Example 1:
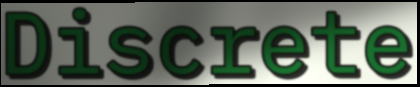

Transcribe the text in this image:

Discrete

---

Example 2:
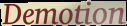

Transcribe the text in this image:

Demotion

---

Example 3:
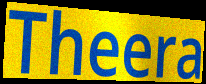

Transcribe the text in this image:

Theera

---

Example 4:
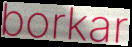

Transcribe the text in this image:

borkar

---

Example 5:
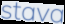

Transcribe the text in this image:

stava